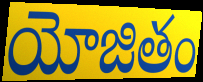
యోజితం